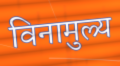
विनामुल्य